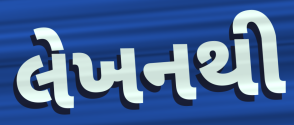
લેખનથી